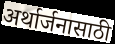
अर्थार्जनासाठी